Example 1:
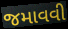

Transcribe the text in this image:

જમાવવી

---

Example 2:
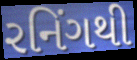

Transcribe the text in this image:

રનિંગથી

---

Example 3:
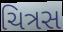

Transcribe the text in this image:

ચિત્રસ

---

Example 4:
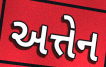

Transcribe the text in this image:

અત્તેન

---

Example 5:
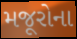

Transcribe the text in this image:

મજૂરોના